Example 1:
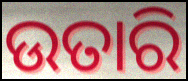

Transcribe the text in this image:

ଉତାରି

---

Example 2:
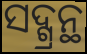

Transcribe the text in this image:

ସଦ୍ଗ୍ରନ୍ଥ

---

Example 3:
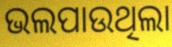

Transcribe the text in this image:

ଭଲପାଉଥିଲା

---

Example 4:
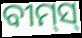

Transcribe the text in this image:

ବୀମ୍‌ସ୍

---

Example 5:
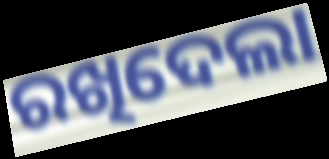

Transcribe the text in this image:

ରଖିଦେଲା